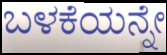
ಬಳಕೆಯನ್ನೇ